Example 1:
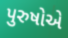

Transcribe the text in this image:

પુરુષોએ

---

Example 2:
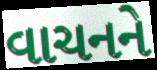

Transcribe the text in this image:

વાચનને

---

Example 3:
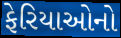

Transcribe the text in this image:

ફેરિયાઓનો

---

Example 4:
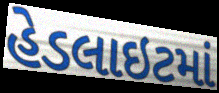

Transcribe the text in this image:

હેડલાઇટમાં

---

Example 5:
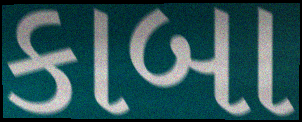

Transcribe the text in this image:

કાબા